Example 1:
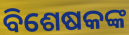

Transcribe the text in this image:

ବିଶେଷକଙ୍କ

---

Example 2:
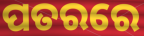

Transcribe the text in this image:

ପତରରେ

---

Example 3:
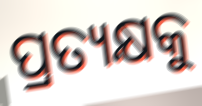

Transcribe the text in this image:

ପ୍ରତ୍ୟକ୍ଷକୁ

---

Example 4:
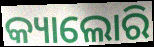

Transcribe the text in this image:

କ୍ୟାଲୋରି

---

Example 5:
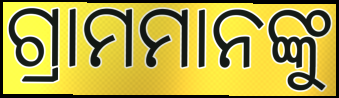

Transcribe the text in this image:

ଗ୍ରାମମାନଙ୍କୁ